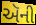
ઍની